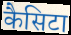
कैसिटा